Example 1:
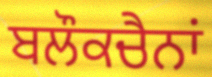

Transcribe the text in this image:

ਬਲੌਕਚੈਨਾਂ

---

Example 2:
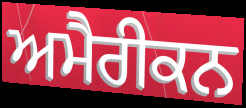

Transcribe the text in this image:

ਅਮੈਰੀਕਨ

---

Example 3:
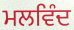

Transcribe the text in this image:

ਮਲਵਿੰਦ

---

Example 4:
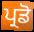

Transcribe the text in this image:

ਪ੍ਰਡੋ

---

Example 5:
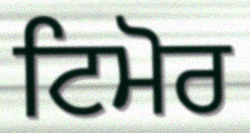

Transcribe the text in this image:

ਟਿਮੋਰ